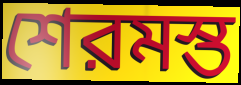
শেরমস্ত